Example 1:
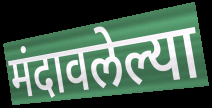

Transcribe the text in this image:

मंदावलेल्या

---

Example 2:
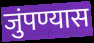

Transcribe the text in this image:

जुंपण्यास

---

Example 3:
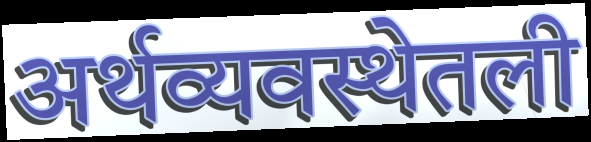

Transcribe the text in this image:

अर्थव्यवस्थेतली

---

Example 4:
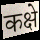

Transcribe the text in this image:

कक्षे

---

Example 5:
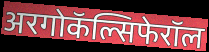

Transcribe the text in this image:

अरगोकॅल्सिफेरॉल